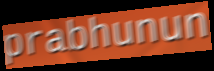
prabhunun